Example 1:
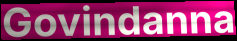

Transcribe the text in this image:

Govindanna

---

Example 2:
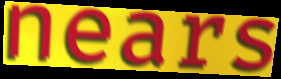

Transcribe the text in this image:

nears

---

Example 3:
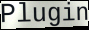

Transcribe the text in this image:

Plugin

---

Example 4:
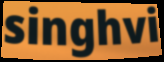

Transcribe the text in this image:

singhvi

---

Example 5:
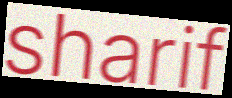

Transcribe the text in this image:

sharif